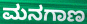
ಮನಗಾಣ